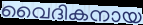
വൈദികനായ